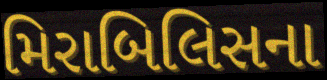
મિરાબિલિસના